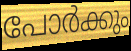
പോർക്കും